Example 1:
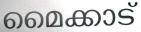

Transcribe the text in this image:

മൈക്കാട്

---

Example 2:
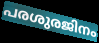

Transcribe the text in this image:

പരശുരജിനം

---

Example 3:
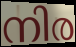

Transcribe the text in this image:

നിര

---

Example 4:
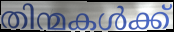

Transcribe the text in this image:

തിന്മകൾക്ക്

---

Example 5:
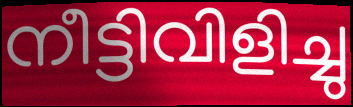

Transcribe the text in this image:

നീട്ടിവിളിച്ചു